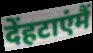
देंहटाएंमैं